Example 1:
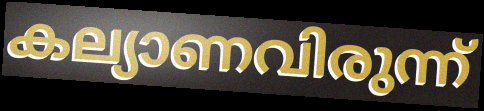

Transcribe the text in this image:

കല്യാണവിരുന്ന്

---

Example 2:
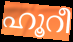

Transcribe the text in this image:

ഹൂറീ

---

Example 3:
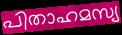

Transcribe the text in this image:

പിതാഹമസ്യ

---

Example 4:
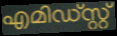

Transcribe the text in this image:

എമിഡ്സ്റ്റ്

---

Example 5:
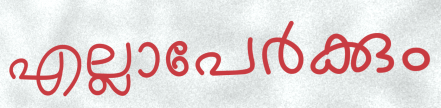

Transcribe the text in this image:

എല്ലാപേർക്കും